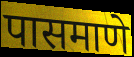
पासमाणे